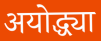
अयोद्ध्या